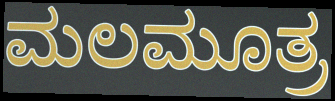
ಮಲಮೂತ್ರ